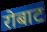
रोबाट